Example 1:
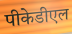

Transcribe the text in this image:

पीकेडीएल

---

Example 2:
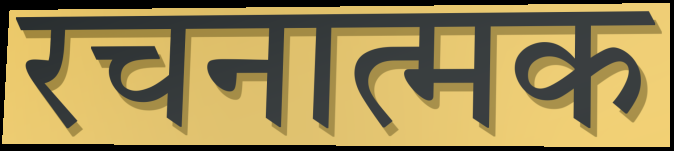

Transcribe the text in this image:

रचनात्मक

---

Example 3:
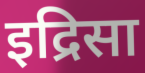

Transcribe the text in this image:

इद्रिसा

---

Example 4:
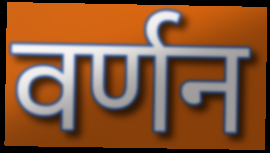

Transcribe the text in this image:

वर्णन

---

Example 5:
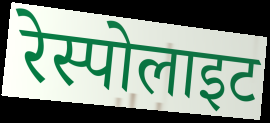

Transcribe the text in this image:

रेस्पोलाइट